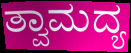
ತ್ವಾಮದ್ಯ